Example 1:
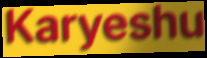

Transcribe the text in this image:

Karyeshu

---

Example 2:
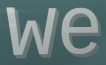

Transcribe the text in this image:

we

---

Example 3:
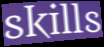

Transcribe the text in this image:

skills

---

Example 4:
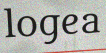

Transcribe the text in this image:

logea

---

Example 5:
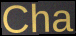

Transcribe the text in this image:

Cha